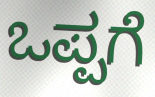
ಒಪ್ಪಗೆ